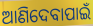
ଆଣିଦେବାପାଇଁ